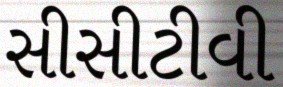
સીસીટીવી